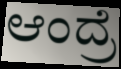
ಆಂದ್ರೆ